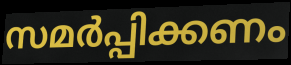
സമർപ്പിക്കണം